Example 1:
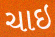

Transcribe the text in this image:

ચાઇ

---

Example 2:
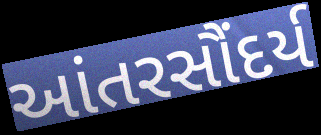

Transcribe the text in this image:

આંતરસૌંદર્ય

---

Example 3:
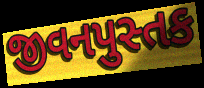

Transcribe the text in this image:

જીવનપુસ્તક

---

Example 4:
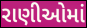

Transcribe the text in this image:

રાણીઓમાં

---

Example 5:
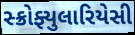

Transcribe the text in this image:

સ્ક્રોફ્યુલારિયેસી